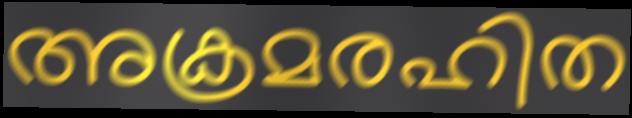
അക്രമരഹിത